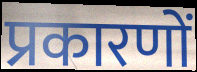
प्रकारणों